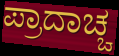
ಪ್ರಾದಾಚ್ಚ